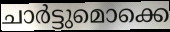
ചാർട്ടുമൊക്കെ